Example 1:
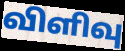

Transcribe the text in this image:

விளிவு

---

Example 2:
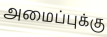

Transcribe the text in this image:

அமைப்புக்கு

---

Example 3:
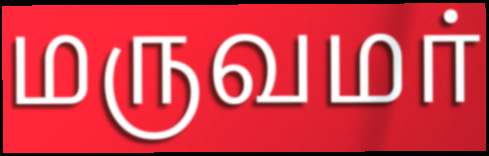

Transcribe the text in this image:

மருவமர்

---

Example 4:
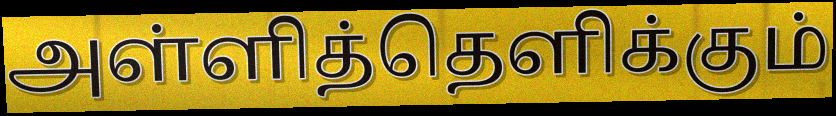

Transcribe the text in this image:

அள்ளித்தெளிக்கும்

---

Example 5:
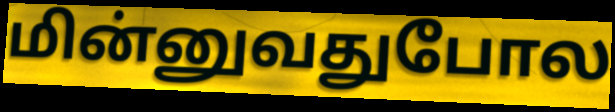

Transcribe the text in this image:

மின்னுவதுபோல